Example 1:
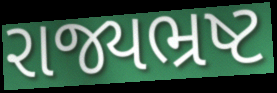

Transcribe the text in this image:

રાજ્યભ્રષ્ટ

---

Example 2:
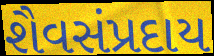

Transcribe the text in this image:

શૈવસંપ્રદાય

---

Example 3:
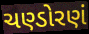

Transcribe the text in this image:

ચણ્ડોરણં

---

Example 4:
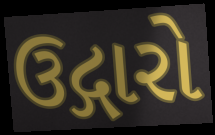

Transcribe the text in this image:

ઉદ્ગારો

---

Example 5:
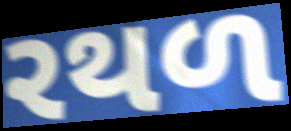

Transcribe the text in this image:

રથળ